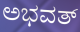
ಅಭವತ್